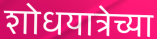
शोधयात्रेच्या